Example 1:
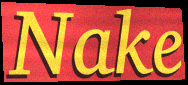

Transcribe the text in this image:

Nake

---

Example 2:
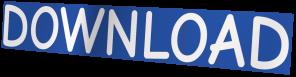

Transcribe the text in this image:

DOWNLOAD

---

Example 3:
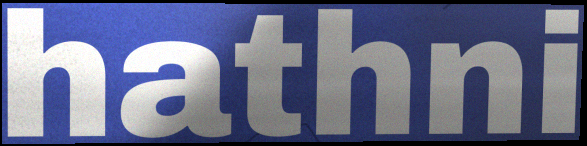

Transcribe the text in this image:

hathni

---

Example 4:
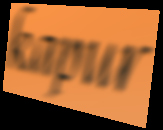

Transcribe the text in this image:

kapur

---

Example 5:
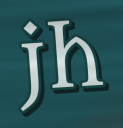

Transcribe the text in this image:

jh